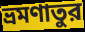
ভ্রমণাতুর